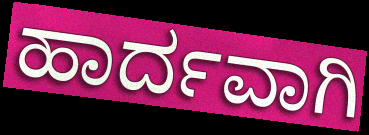
ಹಾರ್ದವಾಗಿ